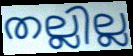
തല്ലില്ല